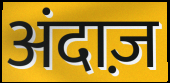
अंदाज़